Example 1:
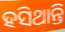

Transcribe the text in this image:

ହସିଥାନ୍ତି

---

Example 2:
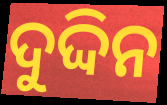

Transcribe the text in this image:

ଦୁଦ୍ଦିନ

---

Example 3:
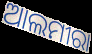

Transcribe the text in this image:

ଆଲମୀରା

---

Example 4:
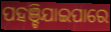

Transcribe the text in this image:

ପହଞ୍ଚିଯାଇପାରେ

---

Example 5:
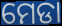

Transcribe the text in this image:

ମେଡା